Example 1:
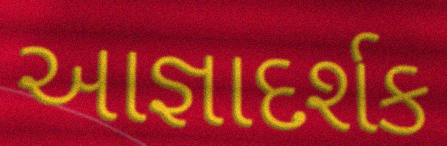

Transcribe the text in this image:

આજ્ઞાદર્શક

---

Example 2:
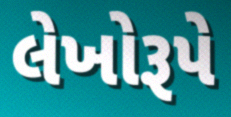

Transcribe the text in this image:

લેખોરૂપે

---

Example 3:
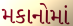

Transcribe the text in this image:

મકાનોમાં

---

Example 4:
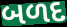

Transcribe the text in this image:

બળદ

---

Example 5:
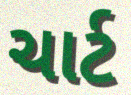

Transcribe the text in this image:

ચાર્ટ